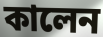
কালেন